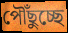
পৌঁছুচ্ছে